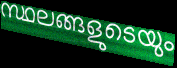
സ്ഥലങ്ങളുടെയും